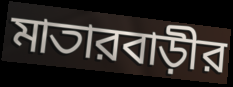
মাতারবাড়ীর